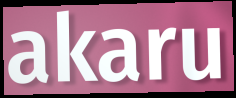
akaru